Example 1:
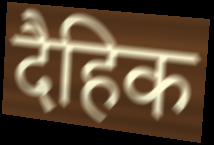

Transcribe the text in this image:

दैहिक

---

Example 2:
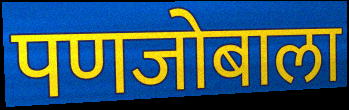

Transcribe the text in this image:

पणजोबाला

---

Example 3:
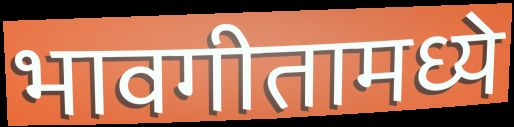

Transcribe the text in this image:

भावगीतामध्ये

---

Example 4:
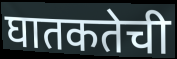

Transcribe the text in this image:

घातकतेची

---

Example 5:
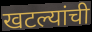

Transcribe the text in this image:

खटल्यांची